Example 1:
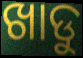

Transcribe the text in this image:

ଖାଡୁ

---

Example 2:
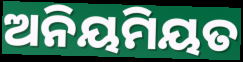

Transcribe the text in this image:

ଅନିୟମିୟତ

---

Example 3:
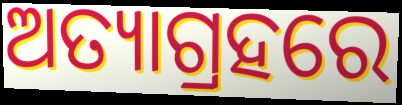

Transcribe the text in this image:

ଅତ୍ୟାଗ୍ରହରେ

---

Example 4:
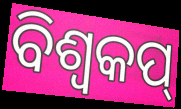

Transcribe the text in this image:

ବିଶ୍ବକପ୍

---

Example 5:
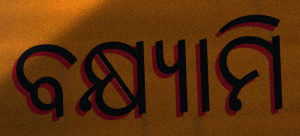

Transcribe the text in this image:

ବକ୍ଷ୍ୟାମି